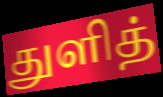
துளித்